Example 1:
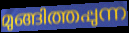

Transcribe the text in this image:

മുങ്ങിത്തപ്പുന്ന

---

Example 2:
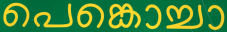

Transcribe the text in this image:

പെങ്കൊച്ചാ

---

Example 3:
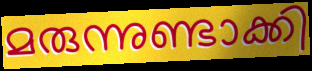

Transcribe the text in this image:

മരുന്നുണ്ടാക്കി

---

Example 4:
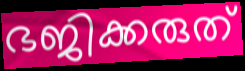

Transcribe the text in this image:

ഭജിക്കരുത്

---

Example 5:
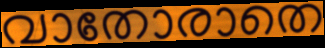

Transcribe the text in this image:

വാതോരാതെ